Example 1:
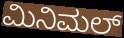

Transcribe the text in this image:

ಮಿನಿಮಲ್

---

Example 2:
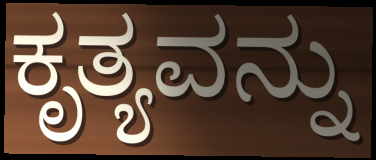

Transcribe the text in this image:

ಕೃತ್ಯವನ್ನು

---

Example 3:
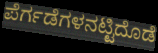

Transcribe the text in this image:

ಪೆರ್ಗಡೆಗಳನಟ್ಟಿದೊಡೆ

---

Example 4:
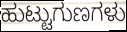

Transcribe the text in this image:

ಹುಟ್ಟುಗುಣಗಳು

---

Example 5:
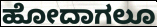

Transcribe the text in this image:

ಹೋದಾಗಲೂ